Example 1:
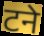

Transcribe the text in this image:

टने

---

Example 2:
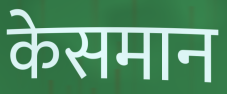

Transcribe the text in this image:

केसमान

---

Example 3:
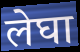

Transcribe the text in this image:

लेघा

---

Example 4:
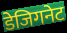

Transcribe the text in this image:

डेजिगनेट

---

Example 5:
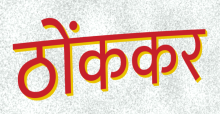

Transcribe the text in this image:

ठोंककर